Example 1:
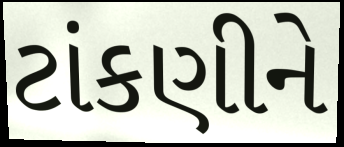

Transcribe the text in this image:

ટાંકણીને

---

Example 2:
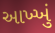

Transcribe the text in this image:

આખ્ખું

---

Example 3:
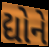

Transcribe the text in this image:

દ્યોને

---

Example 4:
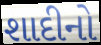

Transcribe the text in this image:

શાદીનો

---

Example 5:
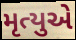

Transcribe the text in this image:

મૃત્યુએ